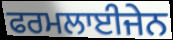
ਫਰਮਲਾਈਜੇਨ